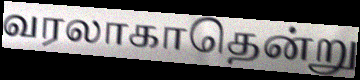
வரலாகாதென்று